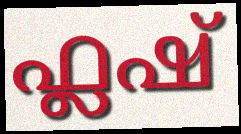
ഫ്ലഷ്